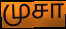
முசா